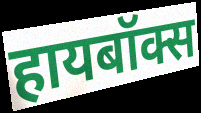
हायबॉक्स